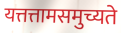
यत्तत्तामसमुच्यते